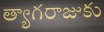
త్యాగరాజుకు